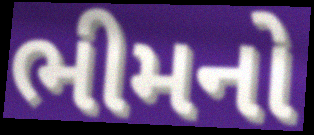
ભીમનો